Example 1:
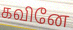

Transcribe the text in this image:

கவினே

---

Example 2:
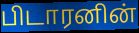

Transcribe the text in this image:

பிடாரனின்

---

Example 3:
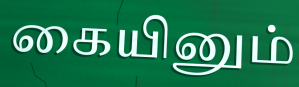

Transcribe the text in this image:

கையினும்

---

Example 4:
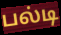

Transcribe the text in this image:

பல்டி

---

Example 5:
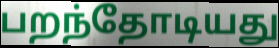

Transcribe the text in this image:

பறந்தோடியது